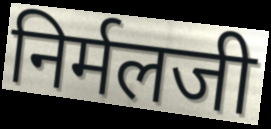
निर्मलजी